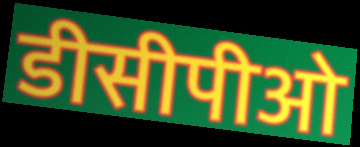
डीसीपीओ